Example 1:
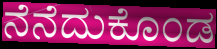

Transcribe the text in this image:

ನೆನೆದುಕೊಂಡ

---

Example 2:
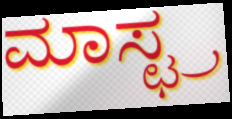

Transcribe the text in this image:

ಮಾಸ್ಟ್ರ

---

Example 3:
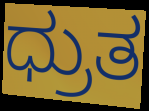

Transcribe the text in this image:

ಧ್ರುತ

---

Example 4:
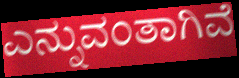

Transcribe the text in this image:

ಎನ್ನುವಂತಾಗಿವೆ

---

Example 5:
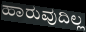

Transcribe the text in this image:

ಹಾರುವುದಿಲ್ಲ